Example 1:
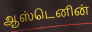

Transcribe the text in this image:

ஆஸ்டெனின்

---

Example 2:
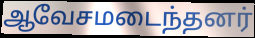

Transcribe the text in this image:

ஆவேசமடைந்தனர்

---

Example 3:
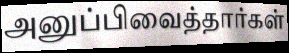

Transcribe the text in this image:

அனுப்பிவைத்தார்கள்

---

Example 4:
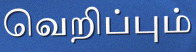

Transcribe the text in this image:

வெறிப்பும்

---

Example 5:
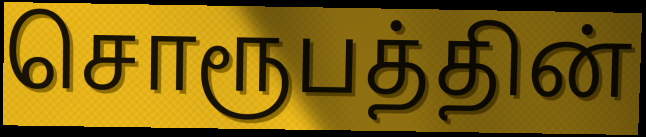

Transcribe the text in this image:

சொரூபத்தின்